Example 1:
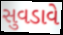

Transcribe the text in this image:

સુવડાવે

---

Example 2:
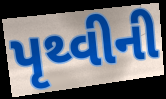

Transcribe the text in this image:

પૃથ્વીની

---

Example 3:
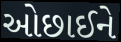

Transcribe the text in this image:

ઓછાઈને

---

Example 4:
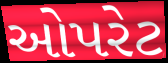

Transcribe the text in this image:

ઓપરેટ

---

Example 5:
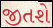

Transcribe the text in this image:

જીતશે